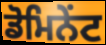
ਡੋਮਿਨੇਂਟ